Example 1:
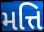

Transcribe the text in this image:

મત્તિ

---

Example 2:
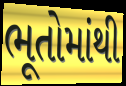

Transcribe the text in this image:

ભૂતોમાંથી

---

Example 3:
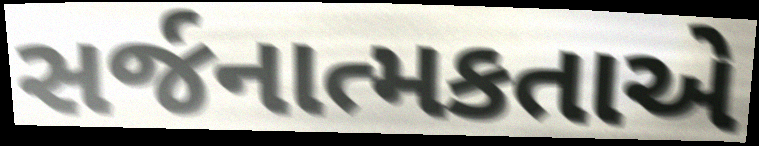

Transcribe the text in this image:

સર્જનાત્મકતાએ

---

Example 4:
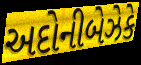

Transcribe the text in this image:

અદોનીબેઝેકે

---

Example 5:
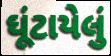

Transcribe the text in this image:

ઘૂંટાયેલું